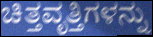
ಚಿತ್ತವೃತ್ತಿಗಳನ್ನು